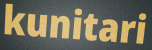
kunitari